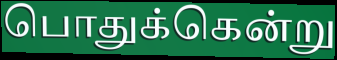
பொதுக்கென்று